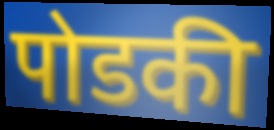
पोडकी